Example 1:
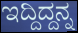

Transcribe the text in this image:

ಇದ್ದಿದ್ದನ್ನ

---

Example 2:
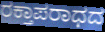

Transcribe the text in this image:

ರಕ್ತಾಪರಾಧದ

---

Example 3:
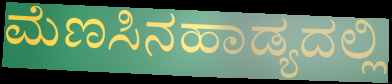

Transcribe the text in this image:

ಮೆಣಸಿನಹಾಡ್ಯದಲ್ಲಿ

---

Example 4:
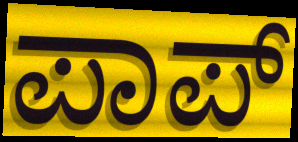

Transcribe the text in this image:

ಪಾಪ್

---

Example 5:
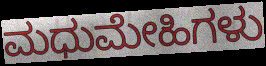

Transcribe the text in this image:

ಮಧುಮೇಹಿಗಳು